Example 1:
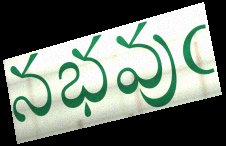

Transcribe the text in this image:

నభవుఁ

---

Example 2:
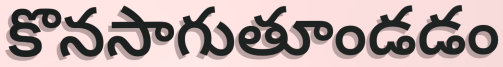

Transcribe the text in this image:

కొనసాగుతూండడం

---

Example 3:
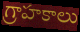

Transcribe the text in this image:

గ్రాహకాలు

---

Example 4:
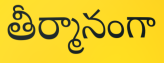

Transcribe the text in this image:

తీర్మానంగా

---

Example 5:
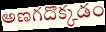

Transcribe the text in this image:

అణగదొక్కడం